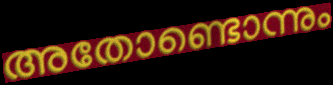
അതോണ്ടൊന്നും